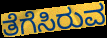
ತೆಗೆಸಿರುವ